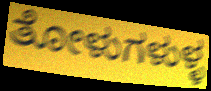
ತೋಳುಗಳುಳ್ಳ